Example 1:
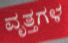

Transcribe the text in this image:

ವೃತ್ತಗಳ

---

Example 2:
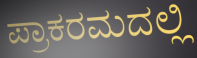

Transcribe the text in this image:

ಪ್ರಾಕರಮದಲ್ಲಿ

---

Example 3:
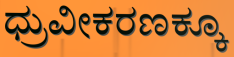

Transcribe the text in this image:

ಧ್ರುವೀಕರಣಕ್ಕೂ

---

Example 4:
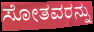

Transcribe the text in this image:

ಸೋತವರನ್ನು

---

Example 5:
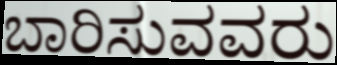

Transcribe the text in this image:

ಬಾರಿಸುವವರು